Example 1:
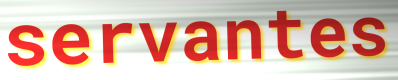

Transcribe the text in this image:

servantes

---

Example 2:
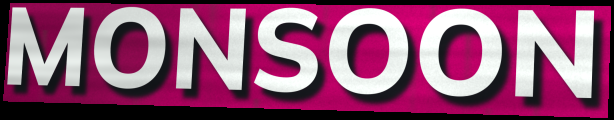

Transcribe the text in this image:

MONSOON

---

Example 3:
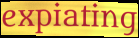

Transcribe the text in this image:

expiating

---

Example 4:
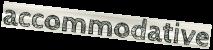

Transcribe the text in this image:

accommodative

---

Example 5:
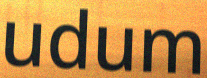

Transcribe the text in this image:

udum